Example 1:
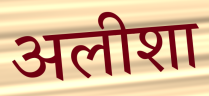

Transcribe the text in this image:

अलीशा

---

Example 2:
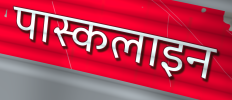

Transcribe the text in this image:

पास्कलाइन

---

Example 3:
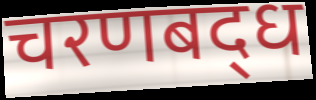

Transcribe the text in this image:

चरणबद्ध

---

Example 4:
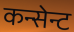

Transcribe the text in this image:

कन्सेन्ट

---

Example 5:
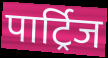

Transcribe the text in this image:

पार्ट्रिज